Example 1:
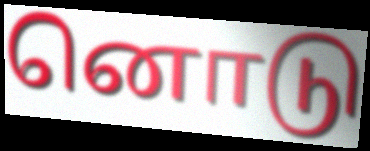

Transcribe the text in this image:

னொடு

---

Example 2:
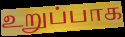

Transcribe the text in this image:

உறுப்பாக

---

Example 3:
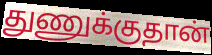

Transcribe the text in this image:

துணுக்குதான்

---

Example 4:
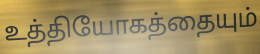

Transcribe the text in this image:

உத்தியோகத்தையும்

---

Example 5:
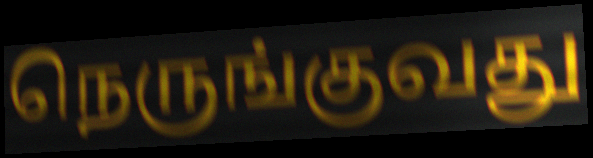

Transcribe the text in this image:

நெருங்குவது